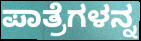
ಪಾತ್ರೆಗಳನ್ನ